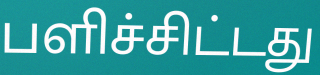
பளிச்சிட்டது